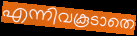
എന്നിവകൂടാതെ